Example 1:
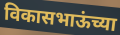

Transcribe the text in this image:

विकासभाऊंच्या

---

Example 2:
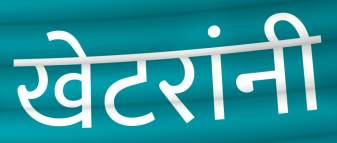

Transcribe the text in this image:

खेटरांनी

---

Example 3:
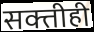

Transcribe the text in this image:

सक्तीही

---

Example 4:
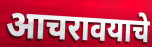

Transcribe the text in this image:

आचरावयाचे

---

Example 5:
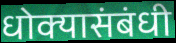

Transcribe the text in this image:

धोक्यासंबंधी